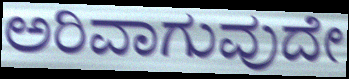
ಅರಿವಾಗುವುದೇ